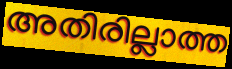
അതിരില്ലാത്ത